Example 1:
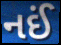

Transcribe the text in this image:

નઈં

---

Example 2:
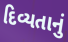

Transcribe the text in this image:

દિવ્યતાનું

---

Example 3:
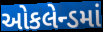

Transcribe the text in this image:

ઓકલેન્ડમાં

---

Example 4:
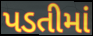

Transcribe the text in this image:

પડતીમાં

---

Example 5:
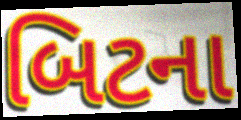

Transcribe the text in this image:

બિટના